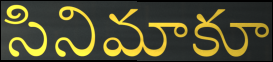
సినిమాకూ